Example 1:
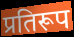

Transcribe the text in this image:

प्रतिरूप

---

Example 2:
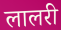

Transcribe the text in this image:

लालरी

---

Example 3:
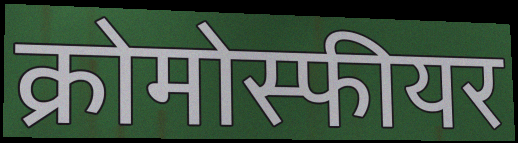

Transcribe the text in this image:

क्रोमोस्फीयर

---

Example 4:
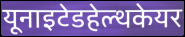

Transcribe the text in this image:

यूनाइटेडहेल्थकेयर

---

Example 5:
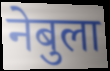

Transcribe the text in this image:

नेबुला